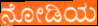
ನೋಡಿಯ